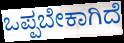
ಒಪ್ಪಬೇಕಾಗಿದೆ